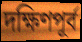
দক্ষিণপূর্ব